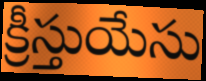
క్రీస్తుయేసు